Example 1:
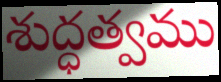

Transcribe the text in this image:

శుద్ధత్వము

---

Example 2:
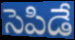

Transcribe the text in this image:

సెపిడే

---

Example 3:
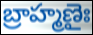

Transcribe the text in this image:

బ్రాహ్మణైః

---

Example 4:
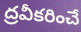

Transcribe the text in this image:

ద్రవీకరించే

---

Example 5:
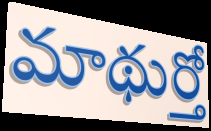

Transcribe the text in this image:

మాథుర్తో